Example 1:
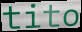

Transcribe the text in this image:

tito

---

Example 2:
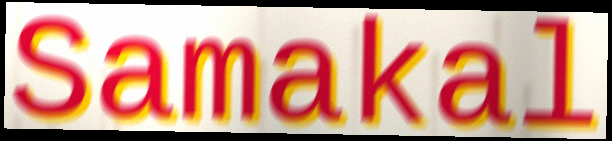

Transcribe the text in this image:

Samakal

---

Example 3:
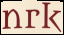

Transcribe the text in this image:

nrk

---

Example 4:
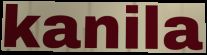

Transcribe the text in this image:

kanila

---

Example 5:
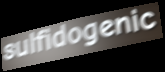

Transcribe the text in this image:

sulfidogenic